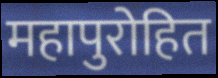
महापुरोहित